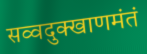
सव्वदुक्खाणमंतं